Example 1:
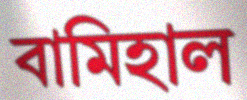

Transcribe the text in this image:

বামিহাল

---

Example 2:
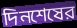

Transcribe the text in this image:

দিনশেষের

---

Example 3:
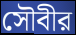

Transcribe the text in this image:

সৌবীর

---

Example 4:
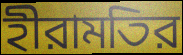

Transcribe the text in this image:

হীরামতির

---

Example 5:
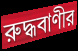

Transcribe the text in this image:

রুদ্ধবাণীর